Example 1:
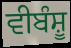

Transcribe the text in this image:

ਵੀਬੰਸ਼ੂ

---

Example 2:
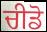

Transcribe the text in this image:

ਚੀਡੋ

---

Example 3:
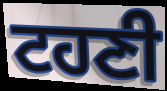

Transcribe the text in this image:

ਟਹਣੀ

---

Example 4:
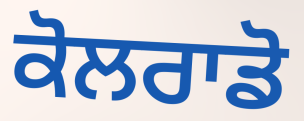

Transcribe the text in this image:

ਕੋਲਰਾਡੋ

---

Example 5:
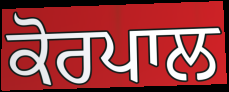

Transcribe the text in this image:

ਕੋਰਪਾਲ